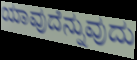
ಯಾವುದೆನ್ನುವುದು